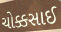
ચોક્કસાઈ